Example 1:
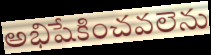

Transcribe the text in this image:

అభిషేకించవలెను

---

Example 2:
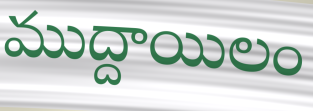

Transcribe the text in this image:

ముద్దాయిలం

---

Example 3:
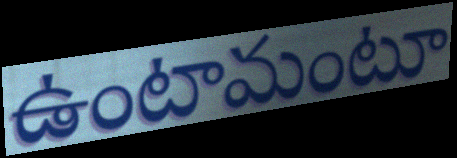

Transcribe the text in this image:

ఉంటామంటూ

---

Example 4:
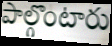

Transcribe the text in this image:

పాల్గొంటారు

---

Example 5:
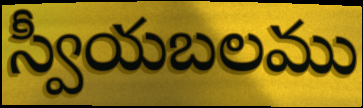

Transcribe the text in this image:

స్వీయబలము